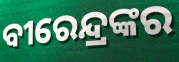
ବୀରେନ୍ଦ୍ରଙ୍କର